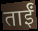
ताईं